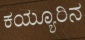
ಕಯ್ಯೂರಿನ